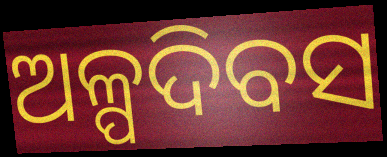
ଅଳ୍ପଦିବସ